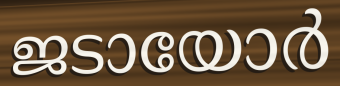
ജടായോർ